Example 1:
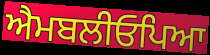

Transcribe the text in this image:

ਐਮਬਲੀਓਪਿਆ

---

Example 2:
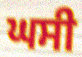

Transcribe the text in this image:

ਘਸੀ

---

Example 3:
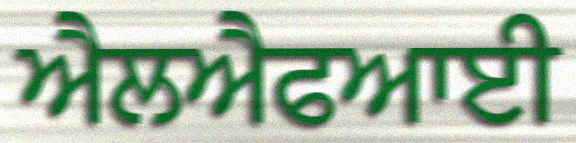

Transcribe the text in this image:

ਐਲਐਫਆਈ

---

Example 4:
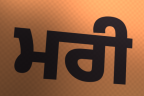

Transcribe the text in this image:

ਮਰੀ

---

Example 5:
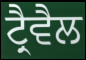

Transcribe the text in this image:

ਟ੍ਰੈਵੈਲ